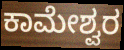
ಕಾಮೇಶ್ವರ